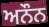
ਅਨੌਨ